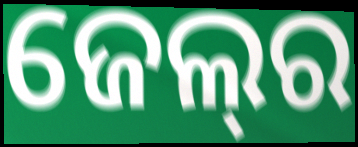
ଜେଲ୍‍ର